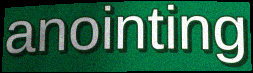
anointing